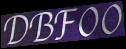
DBFOO